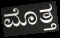
ಮೊತ್ತ